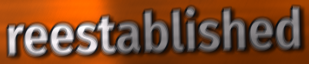
reestablished